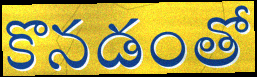
కొనడంతో